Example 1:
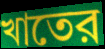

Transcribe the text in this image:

খাতের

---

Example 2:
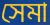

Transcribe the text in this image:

সেমা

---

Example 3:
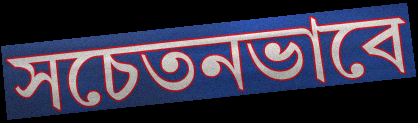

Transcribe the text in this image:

সচেতনভাবে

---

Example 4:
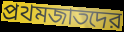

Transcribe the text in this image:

প্রথমজাতদের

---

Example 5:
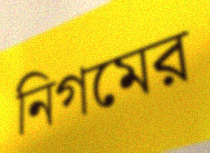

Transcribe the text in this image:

নিগমের